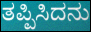
ತಪ್ಪಿಸಿದನು